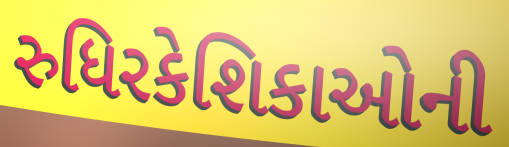
રુધિરકેશિકાઓની